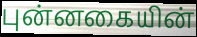
புன்னகையின்